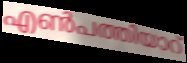
എൺപത്തിയാറ്